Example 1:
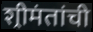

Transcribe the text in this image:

श्रीमंतांची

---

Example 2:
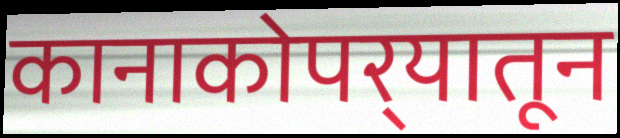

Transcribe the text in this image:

कानाकोपर्‍यातून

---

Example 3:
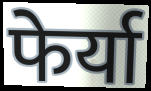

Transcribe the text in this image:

फेर्या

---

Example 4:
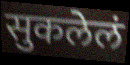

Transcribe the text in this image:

सुकलेलं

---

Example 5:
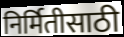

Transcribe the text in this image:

निर्मितीसाठी